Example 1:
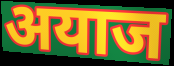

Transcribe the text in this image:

अयाज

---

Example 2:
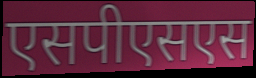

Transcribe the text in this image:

एसपीएसएस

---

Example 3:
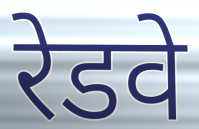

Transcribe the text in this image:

रेडवे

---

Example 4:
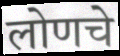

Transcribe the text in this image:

लोणचे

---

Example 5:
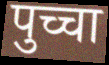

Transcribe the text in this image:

पुच्चा